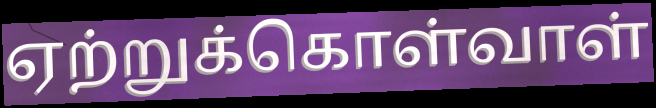
ஏற்றுக்கொள்வாள்